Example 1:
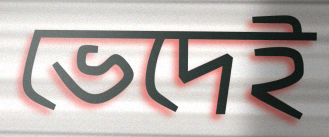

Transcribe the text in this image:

ভেদেই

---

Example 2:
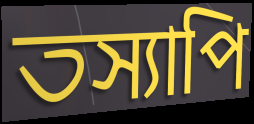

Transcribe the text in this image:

তস্যাপি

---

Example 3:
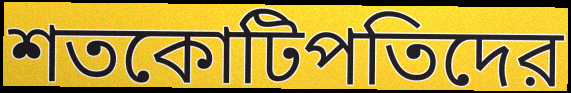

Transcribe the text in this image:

শতকোটিপতিদের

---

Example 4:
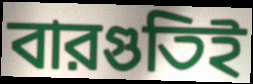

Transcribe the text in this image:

বারগুতিই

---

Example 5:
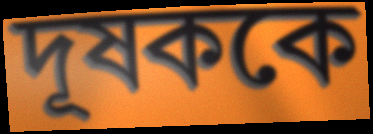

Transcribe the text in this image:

দূষককে